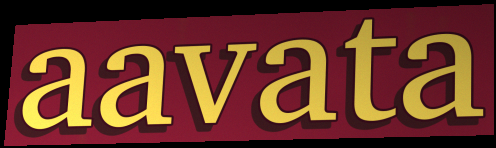
aavata